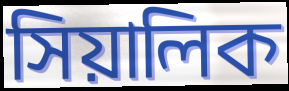
সিয়ালিক